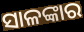
ସାଳଙ୍କାର